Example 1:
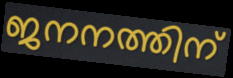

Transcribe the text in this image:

ജനനത്തിന്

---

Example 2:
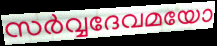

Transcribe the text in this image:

സർവ്വദേവമയോ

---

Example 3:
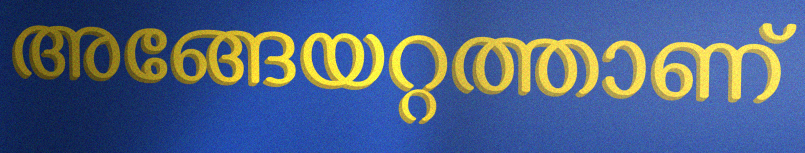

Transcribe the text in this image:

അങ്ങേയറ്റത്താണ്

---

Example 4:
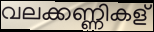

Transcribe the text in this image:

വലക്കണ്ണികള്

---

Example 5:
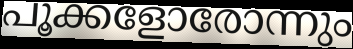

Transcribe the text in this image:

പൂക്കളോരോന്നും